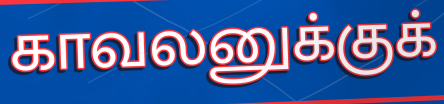
காவலனுக்குக்